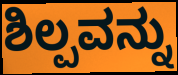
ಶಿಲ್ಪವನ್ನು